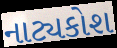
નાટ્યકોશ